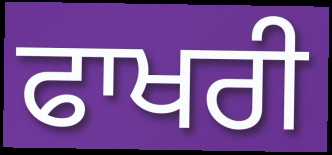
ਫਾਖਰੀ